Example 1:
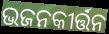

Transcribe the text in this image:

ଭଜନକୀର୍ତ୍ତନ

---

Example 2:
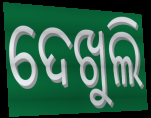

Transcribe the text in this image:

ଦେଖୁଲି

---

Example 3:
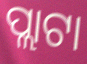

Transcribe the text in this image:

ପ୍ଲାଟା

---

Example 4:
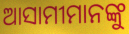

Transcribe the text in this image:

ଆସାମୀମାନଙ୍କୁ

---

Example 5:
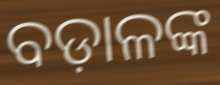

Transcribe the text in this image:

ବଡ଼ାଳଙ୍କ